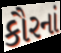
કૌરનાં